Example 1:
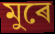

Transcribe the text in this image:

মুৰে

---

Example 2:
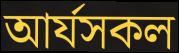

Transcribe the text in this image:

আৰ্যসকল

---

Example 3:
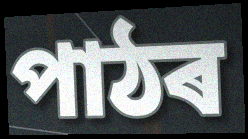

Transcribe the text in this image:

পাঠৰ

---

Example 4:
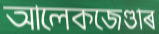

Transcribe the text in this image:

আলেকজেণ্ডাৰ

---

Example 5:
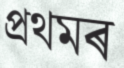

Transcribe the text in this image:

প্ৰথমৰ